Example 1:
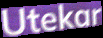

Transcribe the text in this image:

Utekar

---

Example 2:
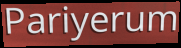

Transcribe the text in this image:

Pariyerum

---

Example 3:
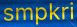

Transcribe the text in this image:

smpkri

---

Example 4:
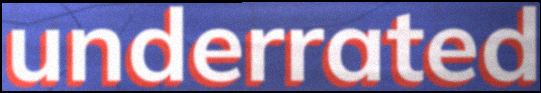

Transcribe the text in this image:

underrated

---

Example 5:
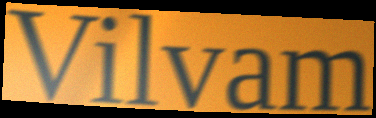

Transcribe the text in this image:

Vilvam